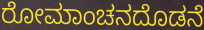
ರೋಮಾಂಚನದೊಡನೆ